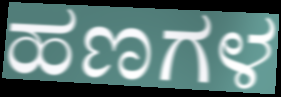
ಹಣಗಳ